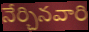
నేర్చినవారి